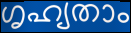
ഗൃഹ്യതാം